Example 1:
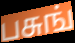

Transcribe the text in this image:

பசுங்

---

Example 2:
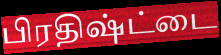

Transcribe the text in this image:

பிரதிஷ்ட்டை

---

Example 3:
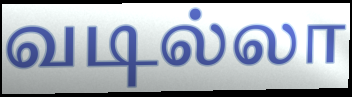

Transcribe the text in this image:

வடில்லா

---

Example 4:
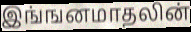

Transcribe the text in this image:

இங்ஙனமாதலின்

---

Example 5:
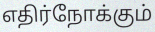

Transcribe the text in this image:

எதிர்நோக்கும்